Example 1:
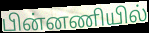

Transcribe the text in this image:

பின்னணியில்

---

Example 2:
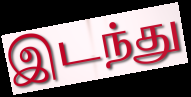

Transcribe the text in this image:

இடந்து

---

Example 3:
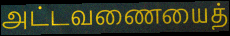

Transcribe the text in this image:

அட்டவணையைத்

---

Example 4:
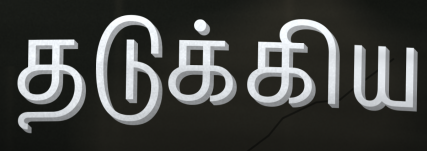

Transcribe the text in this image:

தடுக்கிய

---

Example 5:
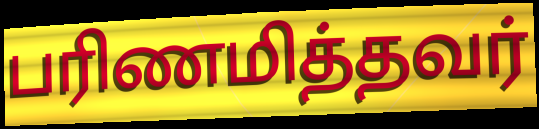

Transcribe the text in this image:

பரிணமித்தவர்